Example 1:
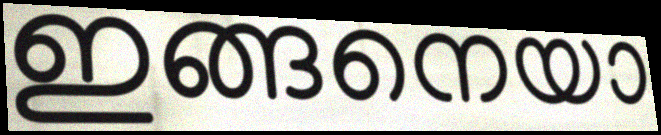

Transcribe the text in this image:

ഇങ്ങനെയാ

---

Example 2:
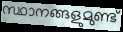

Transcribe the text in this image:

സ്ഥാനങ്ങളുമുണ്ട്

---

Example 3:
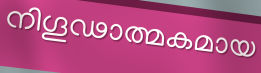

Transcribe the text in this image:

നിഗൂഢാത്മകമായ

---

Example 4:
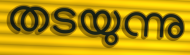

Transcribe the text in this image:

തടയുന്നു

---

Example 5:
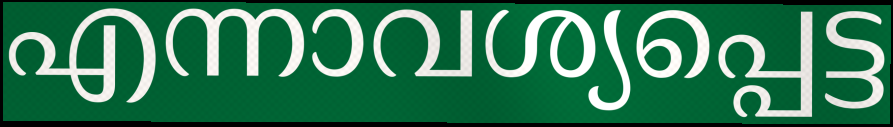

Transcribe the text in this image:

എന്നാവശ്യപ്പെട്ട